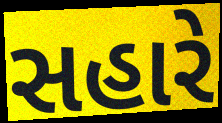
સહારે